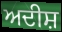
ਅਦੀਸ਼